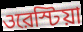
ওরেস্টিয়া